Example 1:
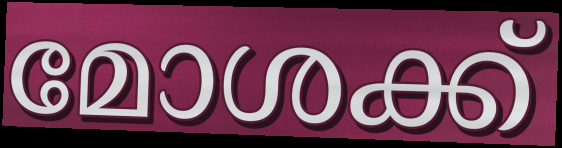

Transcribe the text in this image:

മോശക്ക്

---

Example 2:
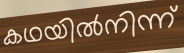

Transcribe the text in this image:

കഥയിൽനിന്ന്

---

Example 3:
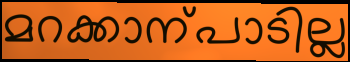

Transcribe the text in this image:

മറക്കാന്പാടില്ല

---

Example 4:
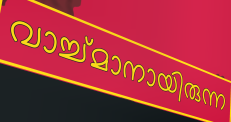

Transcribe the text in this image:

വാച്ച്മാനായിരുന്ന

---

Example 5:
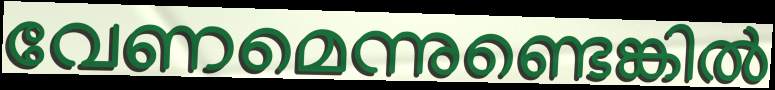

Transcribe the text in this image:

വേണമെന്നുണ്ടെങ്കിൽ